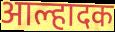
आल्हादक